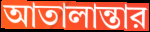
আতালান্তার